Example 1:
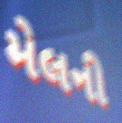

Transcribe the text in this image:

મેલની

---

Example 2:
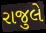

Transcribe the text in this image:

રાજુલે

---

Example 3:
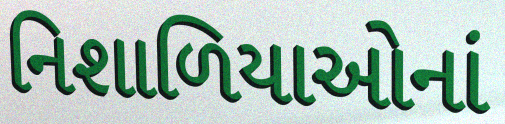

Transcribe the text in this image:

નિશાળિયાઓનાં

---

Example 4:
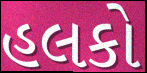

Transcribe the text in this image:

હલકો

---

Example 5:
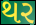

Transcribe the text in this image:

થર